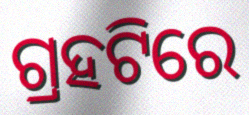
ଗ୍ରହଟିରେ